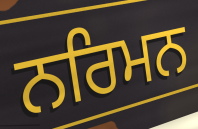
ਨਰਿਮਨ